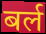
बर्ल